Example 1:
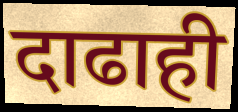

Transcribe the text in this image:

दाढाही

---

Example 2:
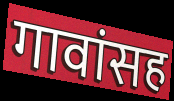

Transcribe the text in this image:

गावांसह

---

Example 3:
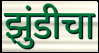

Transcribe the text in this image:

झुंडीचा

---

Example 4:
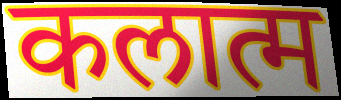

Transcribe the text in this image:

कलात्म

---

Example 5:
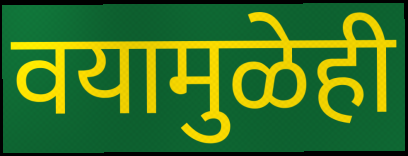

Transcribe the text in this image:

वयामुळेही